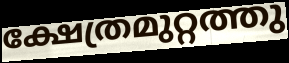
ക്ഷേത്രമുറ്റത്തു